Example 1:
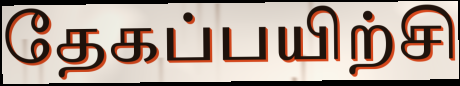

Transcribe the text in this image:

தேகப்பயிற்சி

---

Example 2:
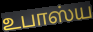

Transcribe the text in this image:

உபாஸ்ய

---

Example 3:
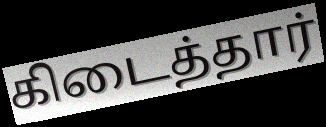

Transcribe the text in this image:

கிடைத்தார்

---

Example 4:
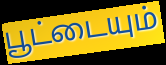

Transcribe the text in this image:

பூட்டையும்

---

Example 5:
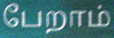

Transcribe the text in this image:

பேறாம்